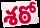
శఠో